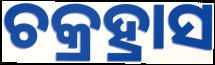
ଚକ୍ରହ୍ରାସ